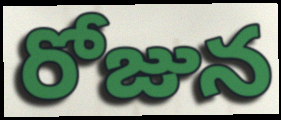
రోజున